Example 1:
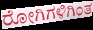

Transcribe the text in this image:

ರೋಗಿಗಳಿಗಿಂತ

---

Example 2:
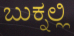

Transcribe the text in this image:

ಬುಕ್ನಲ್ಲಿ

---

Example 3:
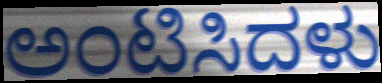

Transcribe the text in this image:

ಅಂಟಿಸಿದಳು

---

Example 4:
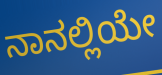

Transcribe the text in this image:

ನಾನಲ್ಲಿಯೇ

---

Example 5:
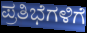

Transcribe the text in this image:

ಪ್ರತಿಭೆಗಳಿಗೆ